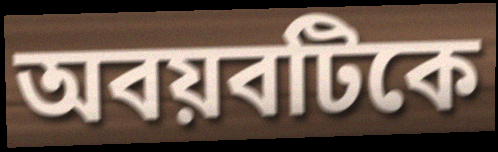
অবয়বটিকে